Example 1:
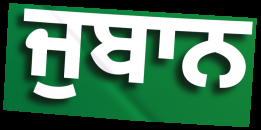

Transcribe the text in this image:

ਜੁਬਾਨ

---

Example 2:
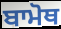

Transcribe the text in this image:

ਬਾਮੋਥ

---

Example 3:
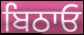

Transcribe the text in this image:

ਬਿਠਾਓ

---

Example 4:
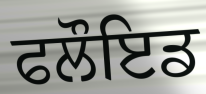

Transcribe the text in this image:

ਫਲੌਇਡ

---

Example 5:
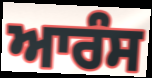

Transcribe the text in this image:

ਆਰੰਸ